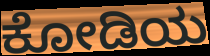
ಕೋಡಿಯ